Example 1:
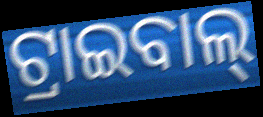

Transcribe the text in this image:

ଟ୍ରାଇବାଲ୍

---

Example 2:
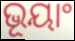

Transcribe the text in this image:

ଭୂୟାଂ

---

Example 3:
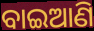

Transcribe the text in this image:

ବାଇଆଣି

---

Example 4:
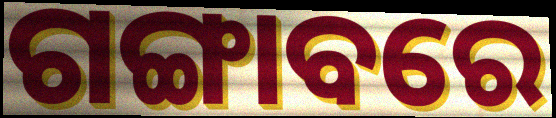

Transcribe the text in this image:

ଗଙ୍ଗାବରେ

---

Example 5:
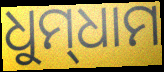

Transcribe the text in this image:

ଧୁମ୍‌ଧାମ